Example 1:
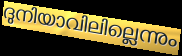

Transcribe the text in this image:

ദുനിയാവിലില്ലെന്നും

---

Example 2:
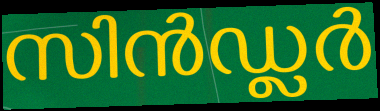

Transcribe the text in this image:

സിൻഡ്ലർ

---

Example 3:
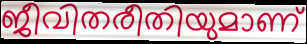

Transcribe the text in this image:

ജീവിതരീതിയുമാണ്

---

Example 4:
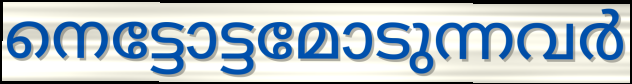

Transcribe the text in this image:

നെട്ടോട്ടമോടുന്നവർ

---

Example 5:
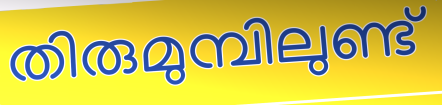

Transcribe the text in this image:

തിരുമുമ്പിലുണ്ട്